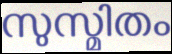
സുസ്മിതം